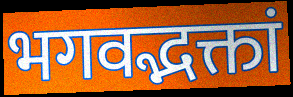
भगवद्भक्तां